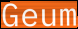
Geum